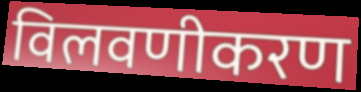
विलवणीकरण